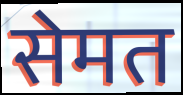
सेमत